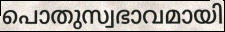
പൊതുസ്വഭാവമായി